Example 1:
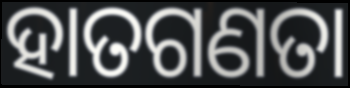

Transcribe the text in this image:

ହାତଗଣତା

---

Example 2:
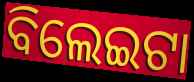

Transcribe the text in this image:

ବିଲେଇଟା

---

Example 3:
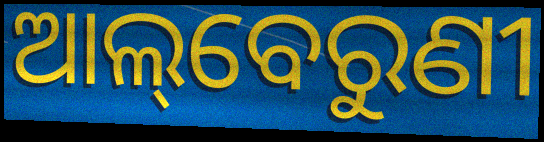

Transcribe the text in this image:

ଆଲ୍‌ବେରୁଣୀ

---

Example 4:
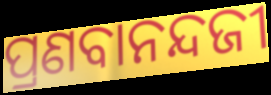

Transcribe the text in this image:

ପ୍ରଣବାନନ୍ଦଜୀ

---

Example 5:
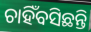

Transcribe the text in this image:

ଚାହିଁବସିଛନ୍ତି